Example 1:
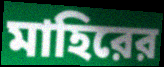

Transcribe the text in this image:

মাহিরের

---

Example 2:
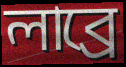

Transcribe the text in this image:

লাব্রে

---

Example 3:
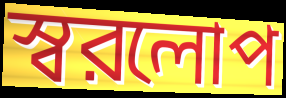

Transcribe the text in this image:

স্বরলোপ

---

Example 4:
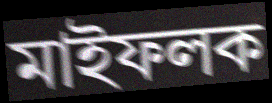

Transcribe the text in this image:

মাইফলক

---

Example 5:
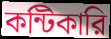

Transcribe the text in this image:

কন্টিকারি